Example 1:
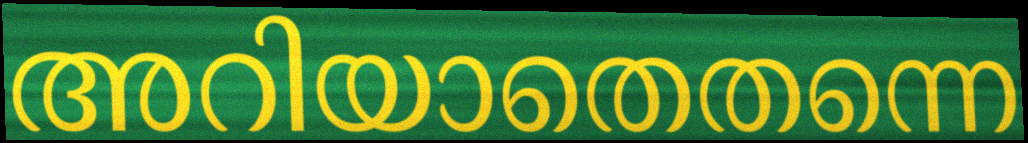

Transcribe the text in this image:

അറിയാതെതന്നെ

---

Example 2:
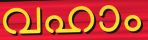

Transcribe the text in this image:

വഹാം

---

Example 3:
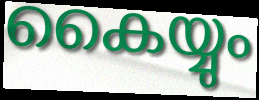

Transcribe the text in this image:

കൈയ്യും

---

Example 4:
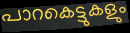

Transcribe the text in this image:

പാറകെട്ടുകളും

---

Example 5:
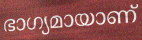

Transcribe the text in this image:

ഭാഗ്യമായാണ്